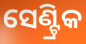
ସେଣ୍ଟ୍ରିକ